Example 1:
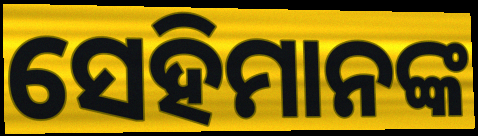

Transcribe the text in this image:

ସେହିମାନଙ୍କ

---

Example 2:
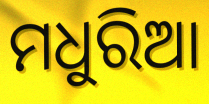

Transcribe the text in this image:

ମଧୁରିଆ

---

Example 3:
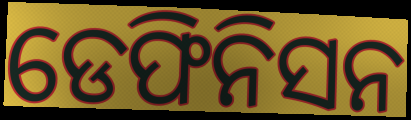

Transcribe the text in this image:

ଡେଫିନିସନ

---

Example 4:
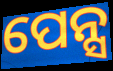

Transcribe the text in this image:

ପେନ୍ସ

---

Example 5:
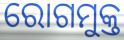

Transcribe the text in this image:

ରୋଗମୁକ୍ତ